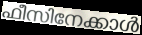
ഫീസിനേക്കാൾ